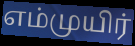
எம்முயிர்